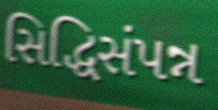
સિદ્ધિસંપન્ન